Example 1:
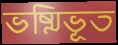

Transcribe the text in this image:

ভষ্মিভূত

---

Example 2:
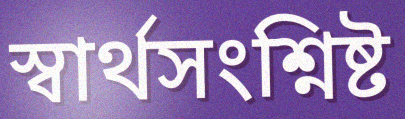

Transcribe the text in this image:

স্বার্থসংশ্নিষ্ট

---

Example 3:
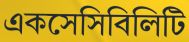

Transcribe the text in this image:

একসেসিবিলিটি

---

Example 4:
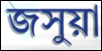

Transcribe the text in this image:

জসুয়া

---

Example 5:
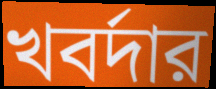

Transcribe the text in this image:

খবর্দার